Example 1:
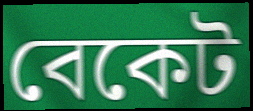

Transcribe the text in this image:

বেকেট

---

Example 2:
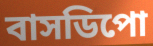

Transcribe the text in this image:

বাসডিপো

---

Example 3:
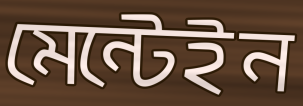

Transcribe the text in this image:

মেন্টেইন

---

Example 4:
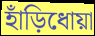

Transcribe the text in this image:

হাঁড়িধোয়া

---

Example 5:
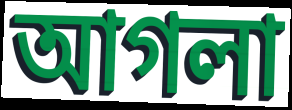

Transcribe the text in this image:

আগলা